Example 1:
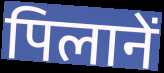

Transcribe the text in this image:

पिलानें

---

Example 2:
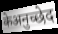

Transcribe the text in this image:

केअनुच्छेद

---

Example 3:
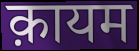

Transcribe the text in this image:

क़ायम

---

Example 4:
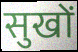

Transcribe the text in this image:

सुखों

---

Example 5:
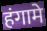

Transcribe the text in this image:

हंगामे